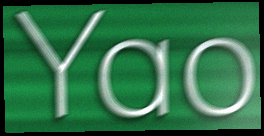
Yao